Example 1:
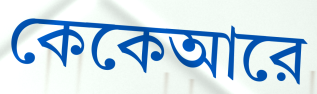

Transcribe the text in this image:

কেকেআরে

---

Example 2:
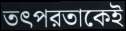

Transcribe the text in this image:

তৎপরতাকেই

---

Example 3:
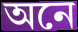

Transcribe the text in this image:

অনে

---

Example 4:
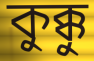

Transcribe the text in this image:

কুক্কু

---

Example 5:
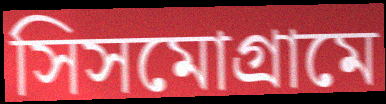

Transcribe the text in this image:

সিসমোগ্রামে